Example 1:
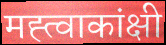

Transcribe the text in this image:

मह्त्वाकांक्षी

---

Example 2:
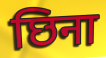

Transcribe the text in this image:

छिना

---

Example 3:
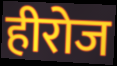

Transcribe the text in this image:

हीरोज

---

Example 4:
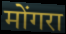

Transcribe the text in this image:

मोंगरा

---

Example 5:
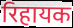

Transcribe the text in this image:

रिहायक